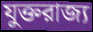
যুক্তরাজ্য